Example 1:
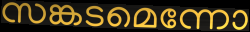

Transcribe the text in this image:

സങ്കടമെന്നോ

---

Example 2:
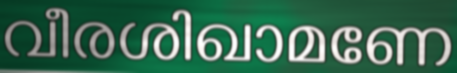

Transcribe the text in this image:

വീരശിഖാമണേ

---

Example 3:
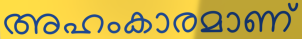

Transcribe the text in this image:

അഹംകാരമാണ്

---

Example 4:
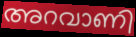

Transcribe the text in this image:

അറവാണി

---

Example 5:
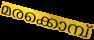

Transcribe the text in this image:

മരക്കൊമ്പ്